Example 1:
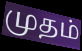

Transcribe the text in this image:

முதம்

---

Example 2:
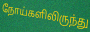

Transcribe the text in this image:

நோய்களிலிருந்து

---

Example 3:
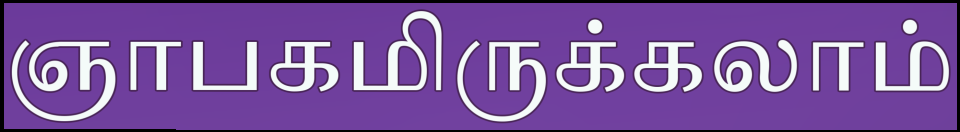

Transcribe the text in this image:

ஞாபகமிருக்கலாம்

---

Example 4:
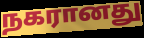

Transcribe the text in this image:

நகரானது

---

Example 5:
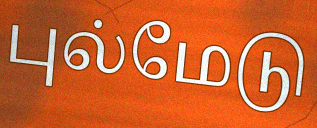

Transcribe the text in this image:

புல்மேடு